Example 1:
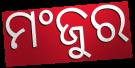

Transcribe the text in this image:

ମଂଜୁର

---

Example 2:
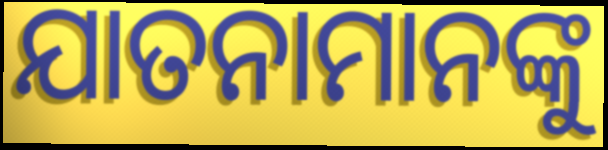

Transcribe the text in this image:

ଯାତନାମାନଙ୍କୁ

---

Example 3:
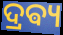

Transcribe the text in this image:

ଦ୍ରଵ୍ୟ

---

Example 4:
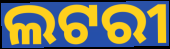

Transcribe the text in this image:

ଲଟରୀ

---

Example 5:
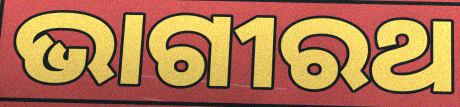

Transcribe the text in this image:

ଭାଗୀରଥ